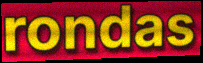
rondas